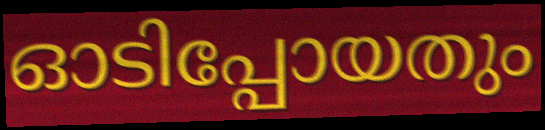
ഓടിപ്പോയതും